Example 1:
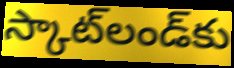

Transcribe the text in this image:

స్కాట్‌లండ్‌కు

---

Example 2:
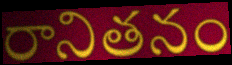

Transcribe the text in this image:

రానితనం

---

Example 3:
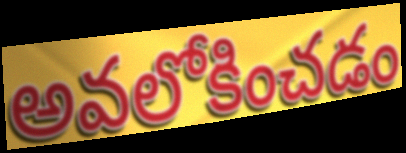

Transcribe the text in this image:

అవలోకించడం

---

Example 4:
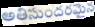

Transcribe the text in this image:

అతిసుందరమైన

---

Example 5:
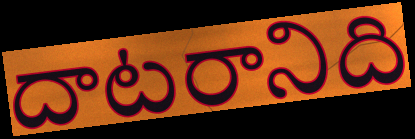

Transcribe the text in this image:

దాటరానిది